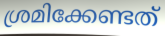
ശ്രമിക്കേണ്ടത്